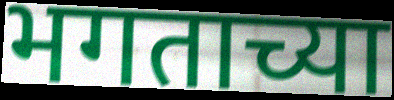
भगताच्या